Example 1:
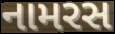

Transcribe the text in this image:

નામરસ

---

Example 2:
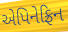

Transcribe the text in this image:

એપિનેફ્રિન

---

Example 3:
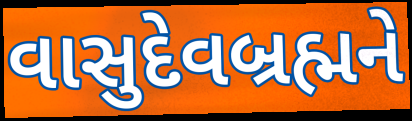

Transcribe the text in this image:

વાસુદેવબ્રહ્મને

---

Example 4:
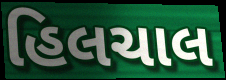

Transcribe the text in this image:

હિલચાલ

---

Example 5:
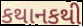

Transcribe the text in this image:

કથાનકથી